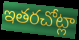
ఇతరచోట్లా